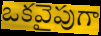
ఒకవైపుగా